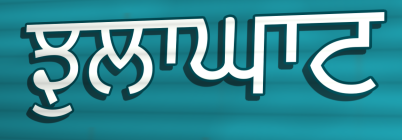
ਝੁਲਾਘਾਟ